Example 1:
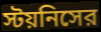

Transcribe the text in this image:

স্টয়নিসের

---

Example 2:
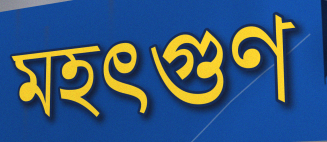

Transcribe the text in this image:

মহৎগুণ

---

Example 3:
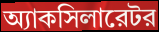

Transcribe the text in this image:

অ্যাকসিলারেটর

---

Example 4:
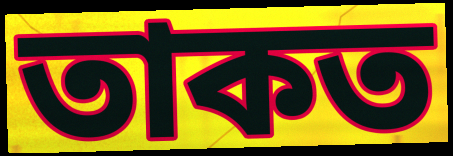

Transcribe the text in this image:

তাকত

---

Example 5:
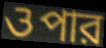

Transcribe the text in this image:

ওপার